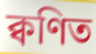
ক্বণিত